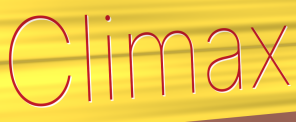
Climax